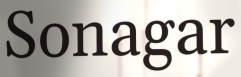
Sonagar